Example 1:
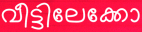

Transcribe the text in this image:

വീട്ടിലേക്കോ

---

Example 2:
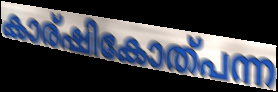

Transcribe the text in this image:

കാര്ഷികോത്പന്ന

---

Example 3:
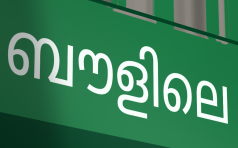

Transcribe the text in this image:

ബൗളിലെ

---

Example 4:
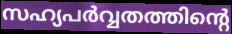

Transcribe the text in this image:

സഹ്യപർവ്വതത്തിന്റെ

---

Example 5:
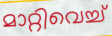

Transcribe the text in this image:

മാറ്റിവെച്ച്